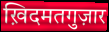
ख़िदमतगुज़ार